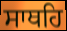
ਸਾਥਹਿ